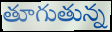
తూగుతున్న